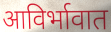
आविर्भावात